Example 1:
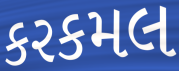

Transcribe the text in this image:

કરકમલ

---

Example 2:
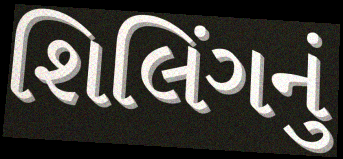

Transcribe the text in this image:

શિલિંગનું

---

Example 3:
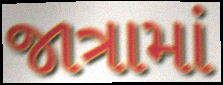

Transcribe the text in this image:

જાત્રામાં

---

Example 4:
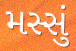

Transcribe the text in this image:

મસ્સું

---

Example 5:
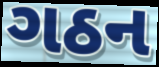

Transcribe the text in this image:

ગઠન